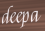
deepa